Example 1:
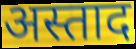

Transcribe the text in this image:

अस्ताद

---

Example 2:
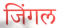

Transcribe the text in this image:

जिंगल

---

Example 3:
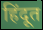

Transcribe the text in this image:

हिंदूत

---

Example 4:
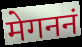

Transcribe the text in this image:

मेगननं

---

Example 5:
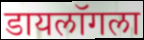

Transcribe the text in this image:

डायलॉगला